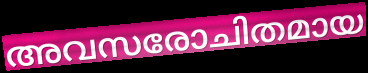
അവസരോചിതമായ